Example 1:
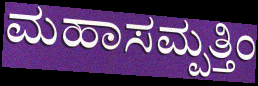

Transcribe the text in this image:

ಮಹಾಸಮ್ಪತ್ತಿಂ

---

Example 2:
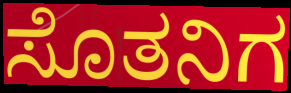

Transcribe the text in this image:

ಸೊತನಿಗ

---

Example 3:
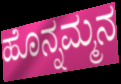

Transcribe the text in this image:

ಹೊನ್ನಮ್ಮನ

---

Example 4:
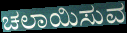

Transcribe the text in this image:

ಚಲಾಯಿಸುವ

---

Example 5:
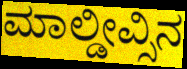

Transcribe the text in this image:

ಮಾಲ್ಡೀವ್ಸಿನ